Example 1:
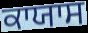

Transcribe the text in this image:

ਕਾਯਾਸ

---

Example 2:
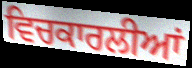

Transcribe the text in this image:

ਵਿਚਕਾਰਲੀਆਂ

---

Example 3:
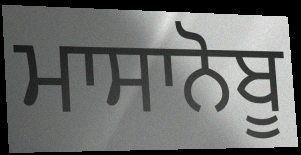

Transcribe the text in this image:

ਮਾਸਾਨੋਬੂ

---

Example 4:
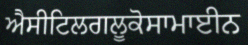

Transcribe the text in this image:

ਐਸੀਟਿਲਗਲੂਕੋਸਾਮਾਈਨ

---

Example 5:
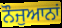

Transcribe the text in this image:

ਨੌਜੁਆਨਾਂ